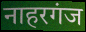
नाहरगंज